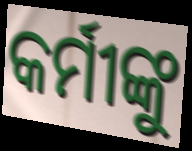
କର୍ମୀଙ୍କୁ